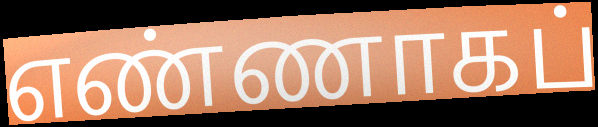
எண்ணாகப்